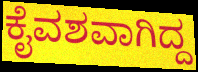
ಕೈವಶವಾಗಿದ್ದ